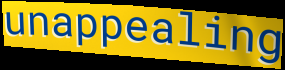
unappealing